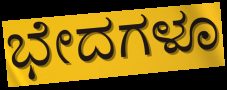
ಭೇದಗಳೂ